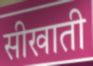
सीखाती